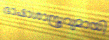
ഭാഷാശാസ്ത്രവുമായി